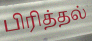
பிரித்தல்